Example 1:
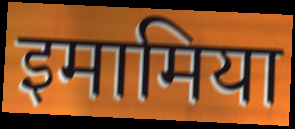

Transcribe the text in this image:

इमामिया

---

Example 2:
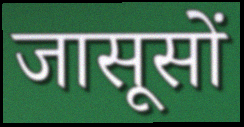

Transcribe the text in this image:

जासूसों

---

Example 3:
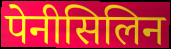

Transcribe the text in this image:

पेनीसिलिन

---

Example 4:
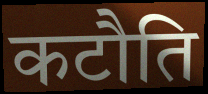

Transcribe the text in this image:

कटौति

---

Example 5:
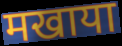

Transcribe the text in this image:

मखाया